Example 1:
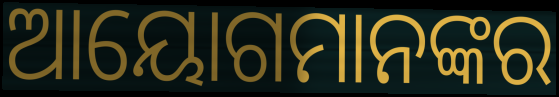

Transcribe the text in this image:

ଆୟୋଗମାନଙ୍କର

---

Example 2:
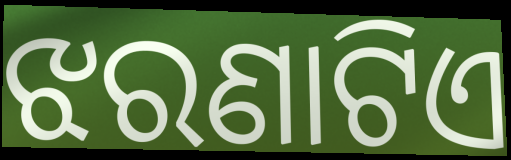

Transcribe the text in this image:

ଝରଣାଟିଏ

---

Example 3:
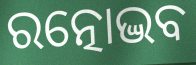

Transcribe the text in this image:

ରତ୍ନୋଦ୍ଭବ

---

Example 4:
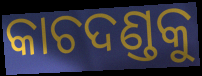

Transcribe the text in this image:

କାଚଦଣ୍ଡକୁ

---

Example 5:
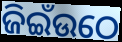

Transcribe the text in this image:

ଜିଇଁଉଠେ